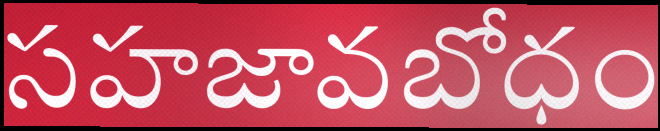
సహజావబోధం